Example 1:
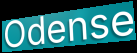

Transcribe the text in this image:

Odense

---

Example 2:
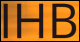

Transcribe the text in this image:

IHB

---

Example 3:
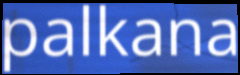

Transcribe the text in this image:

palkana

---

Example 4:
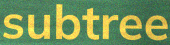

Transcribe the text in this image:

subtree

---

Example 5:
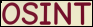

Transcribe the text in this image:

OSINT